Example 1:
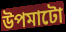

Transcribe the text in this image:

উপমাটো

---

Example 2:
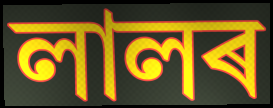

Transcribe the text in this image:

লালৰ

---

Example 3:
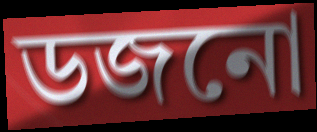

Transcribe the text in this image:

ডজনো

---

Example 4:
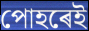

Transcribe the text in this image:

পোহৰেই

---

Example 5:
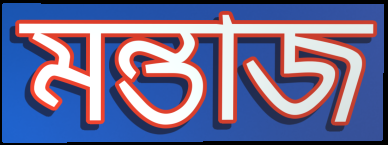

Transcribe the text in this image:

মন্তাজ